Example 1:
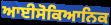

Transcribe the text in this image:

ਆਈਸੋਕਿਆਨਿਕ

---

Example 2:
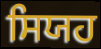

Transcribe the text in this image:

ਸਿਯਹ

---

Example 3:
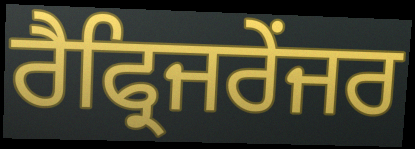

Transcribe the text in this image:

ਰੈਫ੍ਰਿਜਰੇਂਜਰ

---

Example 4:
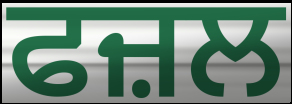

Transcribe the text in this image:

ਫਜ਼ਲ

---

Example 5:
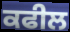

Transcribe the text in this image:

ਕਫੀਲ